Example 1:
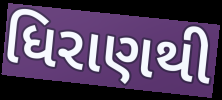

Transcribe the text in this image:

ધિરાણથી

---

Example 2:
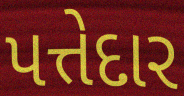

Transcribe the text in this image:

પત્તેદાર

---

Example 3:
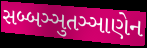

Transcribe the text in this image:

સબ્બઞ્ઞુતઞ્ઞાણેન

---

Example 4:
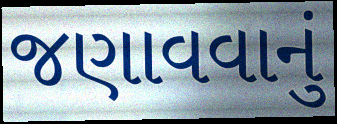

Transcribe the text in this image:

જણાવવાનું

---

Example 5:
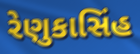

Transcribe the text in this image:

રેણુકાસિંહ